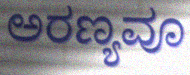
ಅರಣ್ಯವೂ